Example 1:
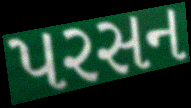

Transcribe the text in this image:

પરસન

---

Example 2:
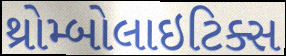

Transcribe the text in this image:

થ્રોમ્બોલાઇટિક્સ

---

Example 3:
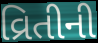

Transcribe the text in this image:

વ્રિતીની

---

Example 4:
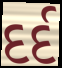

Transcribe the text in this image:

દર્દ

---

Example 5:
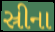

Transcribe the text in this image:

સ્રીના